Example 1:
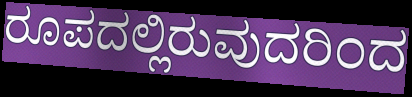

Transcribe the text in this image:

ರೂಪದಲ್ಲಿರುವುದರಿಂದ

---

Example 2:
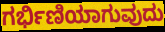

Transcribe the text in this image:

ಗರ್ಭಿಣಿಯಾಗುವುದು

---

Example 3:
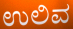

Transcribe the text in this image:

ಉಲಿವ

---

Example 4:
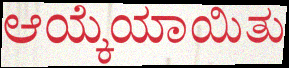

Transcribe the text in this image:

ಆಯ್ಕೆಯಾಯಿತು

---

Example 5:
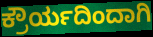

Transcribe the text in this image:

ಕ್ರೌರ್ಯದಿಂದಾಗಿ